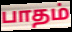
பாதம்